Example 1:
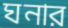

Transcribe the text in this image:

ঘনার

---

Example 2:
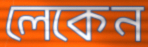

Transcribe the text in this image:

লেকেন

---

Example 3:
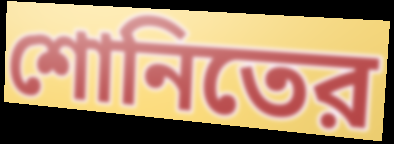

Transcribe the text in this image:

শোনিতের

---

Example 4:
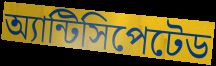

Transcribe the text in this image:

অ্যান্টিসিপেটেড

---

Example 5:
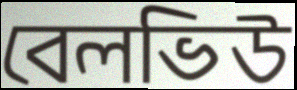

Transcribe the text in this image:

বেলভিউ